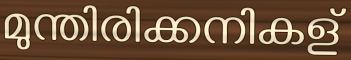
മുന്തിരിക്കനികള്